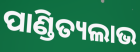
ପାଣ୍ଡିତ୍ୟଲାଭ